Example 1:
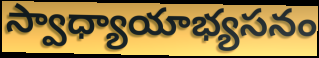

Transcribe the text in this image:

స్వాధ్యాయాభ్యసనం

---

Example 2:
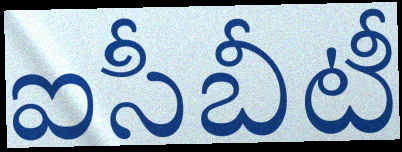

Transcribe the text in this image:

ఐసీబీటీ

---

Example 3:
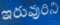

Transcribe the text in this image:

ఇరువురిని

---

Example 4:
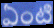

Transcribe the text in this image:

ఏంటి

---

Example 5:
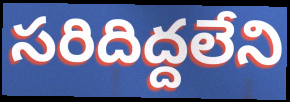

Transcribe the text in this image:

సరిదిద్దలేని